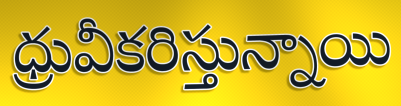
ధ్రువీకరిస్తున్నాయి